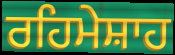
ਰਹਿਮੇਸ਼ਾਹ